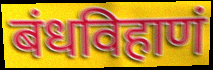
बंधविहाणं